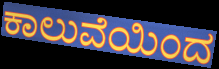
ಕಾಲುವೆಯಿಂದ